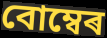
বোম্বেৰ